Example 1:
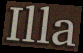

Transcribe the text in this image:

Illa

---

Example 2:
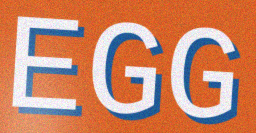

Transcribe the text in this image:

EGG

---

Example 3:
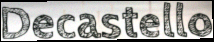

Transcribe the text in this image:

Decastello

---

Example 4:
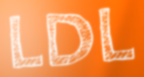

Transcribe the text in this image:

LDL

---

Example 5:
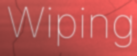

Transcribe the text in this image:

Wiping